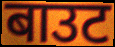
बाउट